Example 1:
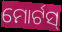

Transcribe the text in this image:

ମୋର୍ଟସ୍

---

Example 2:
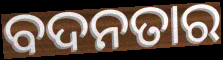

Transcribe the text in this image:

ବଦନତାର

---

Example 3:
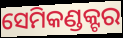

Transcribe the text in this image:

ସେମିକଣ୍ଡକ୍ଟର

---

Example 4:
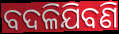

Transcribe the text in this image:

ବଦଳିଯିବଣି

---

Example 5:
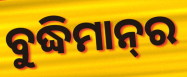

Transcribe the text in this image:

ବୁଦ୍ଧିମାନ୍‍ର